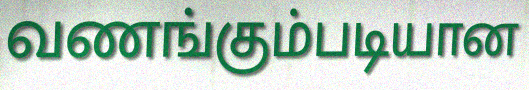
வணங்கும்படியான